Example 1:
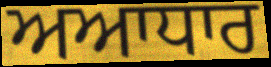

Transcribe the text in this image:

ਅਆਧਾਰ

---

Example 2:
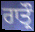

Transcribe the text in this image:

ਰਾਤ੍ਰੌ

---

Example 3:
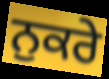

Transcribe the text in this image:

ਨੁਕਰੇ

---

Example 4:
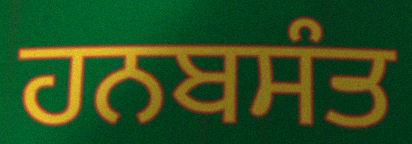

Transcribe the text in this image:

ਹਨਬਸੰਤ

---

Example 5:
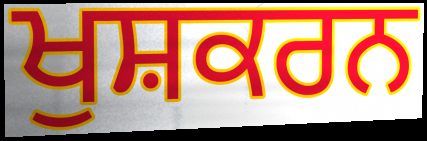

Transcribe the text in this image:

ਖੁਸ਼ਕਰਨ